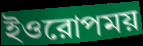
ইওরোপময়